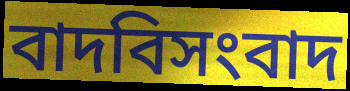
বাদবিসংবাদ